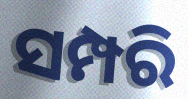
ସମ୍ପରି